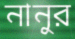
নানুর